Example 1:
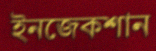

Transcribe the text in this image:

ইনজেকশান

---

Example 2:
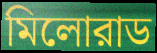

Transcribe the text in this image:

মিলোরাড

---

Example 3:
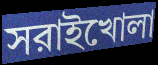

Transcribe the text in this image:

সরাইখোলা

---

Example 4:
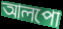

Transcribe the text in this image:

আলপো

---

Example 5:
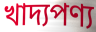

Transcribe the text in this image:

খাদ্যপণ্য